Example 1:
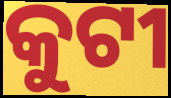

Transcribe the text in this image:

କୁଟୀ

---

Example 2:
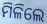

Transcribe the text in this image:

ମିଳିଲେ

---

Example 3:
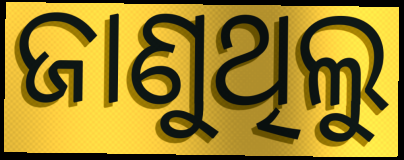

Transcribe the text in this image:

ଜାଣୁଥିଲୁ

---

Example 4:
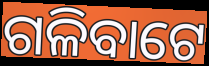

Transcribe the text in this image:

ଗଳିବାଟେ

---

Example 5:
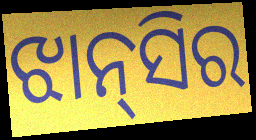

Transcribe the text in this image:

ଝାନ୍‌ସିର